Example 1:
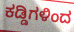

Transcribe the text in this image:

ಕಡ್ಡಿಗಳಿಂದ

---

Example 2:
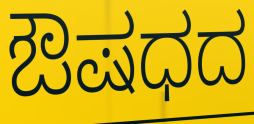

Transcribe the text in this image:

ಔಷಧದ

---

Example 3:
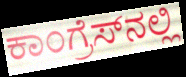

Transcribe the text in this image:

ಕಾಂಗ್ರೆಸ್‍ನಲ್ಲಿ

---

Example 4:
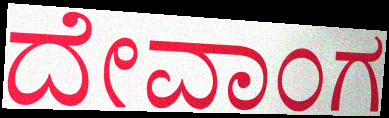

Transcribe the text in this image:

ದೇವಾಂಗ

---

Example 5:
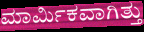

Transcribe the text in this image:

ಮಾರ್ಮಿಕವಾಗಿತ್ತು